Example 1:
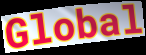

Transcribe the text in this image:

Global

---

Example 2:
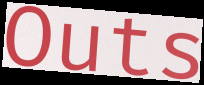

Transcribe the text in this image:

Outs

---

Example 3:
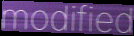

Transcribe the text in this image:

modified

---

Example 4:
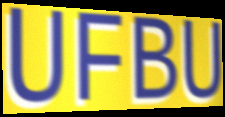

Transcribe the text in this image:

UFBU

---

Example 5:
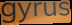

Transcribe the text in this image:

gyrus